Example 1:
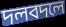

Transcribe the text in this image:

দলবদলে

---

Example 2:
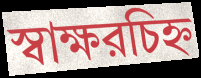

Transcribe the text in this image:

স্বাক্ষরচিহ্ন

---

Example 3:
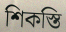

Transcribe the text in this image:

শিকস্তি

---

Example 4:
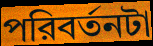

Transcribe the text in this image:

পরিবর্তনটা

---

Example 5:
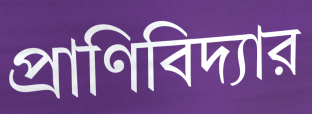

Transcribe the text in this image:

প্রাণিবিদ্যার